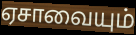
ஏசாவையும்